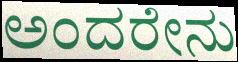
ಅಂದರೇನು